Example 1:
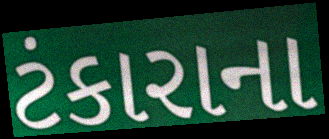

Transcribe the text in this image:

ટંકારાના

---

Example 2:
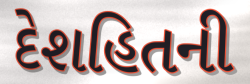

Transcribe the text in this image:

દેશહિતની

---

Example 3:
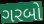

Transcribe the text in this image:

ગરબો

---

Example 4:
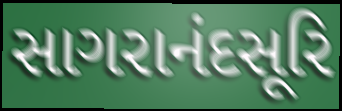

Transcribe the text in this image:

સાગરાનંદસૂરિ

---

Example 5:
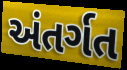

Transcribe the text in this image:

અંતર્ગત